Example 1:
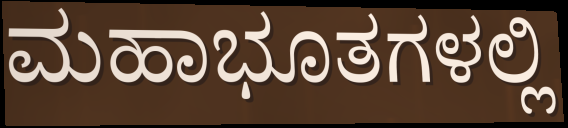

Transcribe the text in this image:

ಮಹಾಭೂತಗಳಲ್ಲಿ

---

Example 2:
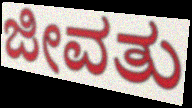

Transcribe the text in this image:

ಜೀವತು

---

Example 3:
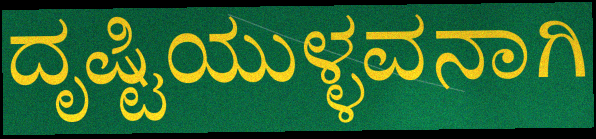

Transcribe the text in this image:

ದೃಷ್ಟಿಯುಳ್ಳವನಾಗಿ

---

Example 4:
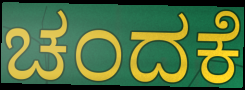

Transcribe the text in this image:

ಚಂದಕೆ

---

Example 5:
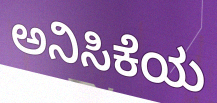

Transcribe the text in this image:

ಅನಿಸಿಕೆಯ